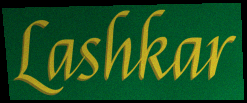
Lashkar